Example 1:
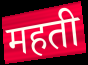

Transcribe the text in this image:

महती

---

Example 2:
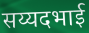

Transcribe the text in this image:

सय्यदभाई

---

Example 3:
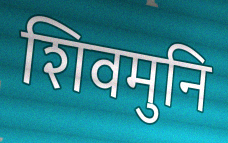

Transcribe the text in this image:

शिवमुनि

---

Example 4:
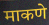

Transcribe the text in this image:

माकणे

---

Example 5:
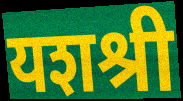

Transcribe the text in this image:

यशश्री